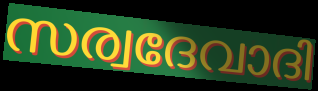
സര്വദേവാദി